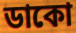
ডাকো